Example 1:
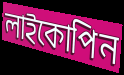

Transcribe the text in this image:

লাইকোপিন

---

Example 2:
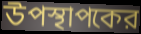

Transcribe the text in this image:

উপস্থাপকের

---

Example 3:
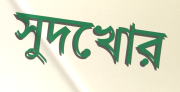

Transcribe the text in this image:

সুদখোর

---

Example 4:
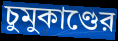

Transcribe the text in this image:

চুমুকাণ্ডের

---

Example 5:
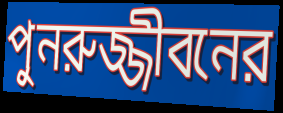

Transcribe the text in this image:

পুনরুজ্জীবনের